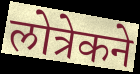
लोत्रेकने